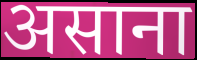
असाना